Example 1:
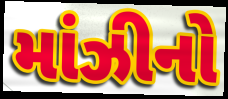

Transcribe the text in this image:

માંઝીનો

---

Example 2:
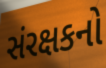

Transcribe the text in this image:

સંરક્ષકનો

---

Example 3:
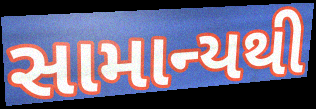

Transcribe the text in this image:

સામાન્યથી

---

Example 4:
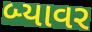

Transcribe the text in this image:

બ્યાવર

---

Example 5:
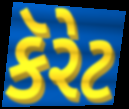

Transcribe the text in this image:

કૅરેટ